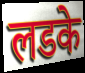
लडके